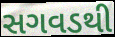
સગવડથી